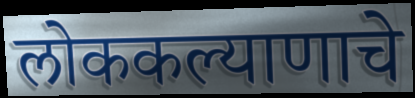
लोककल्याणाचे